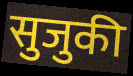
सुजुकी